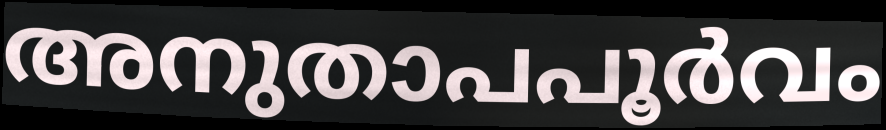
അനുതാപപൂർവം